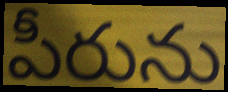
పీరును